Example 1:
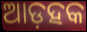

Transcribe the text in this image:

ଆଡ଼ହକ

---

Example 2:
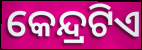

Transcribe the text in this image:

କେନ୍ଦ୍ରଟିଏ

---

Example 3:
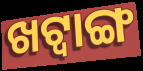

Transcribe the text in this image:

ଖଟ୍ଵାଙ୍ଗ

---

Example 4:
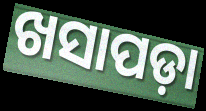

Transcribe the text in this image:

ଖସାପଡ଼ା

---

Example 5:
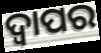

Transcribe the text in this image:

ଦ୍ୱାପର